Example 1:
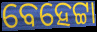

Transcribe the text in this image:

ବେହେଟ୍ଟା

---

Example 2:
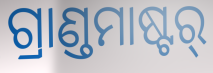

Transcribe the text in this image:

ଗ୍ରାଣ୍ଡମାଷ୍ଟର୍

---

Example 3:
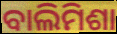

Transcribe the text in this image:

ବାଲିମିଶା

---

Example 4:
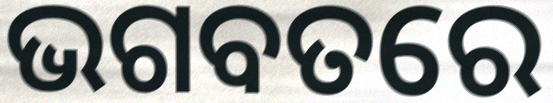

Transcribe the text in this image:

ଭଗବତରେ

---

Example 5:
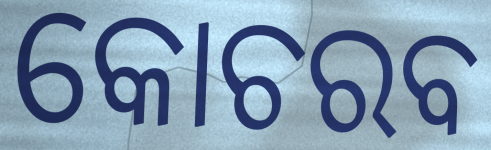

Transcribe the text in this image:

କୋଚରବ